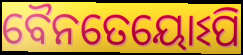
ବୈନତେୟୋଽପି